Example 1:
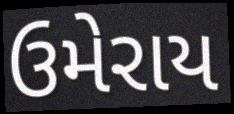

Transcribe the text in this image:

ઉમેરાય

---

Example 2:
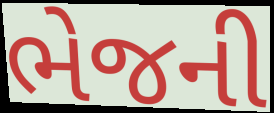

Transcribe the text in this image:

ભેજની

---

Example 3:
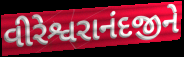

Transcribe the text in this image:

વીરેશ્વરાનંદજીને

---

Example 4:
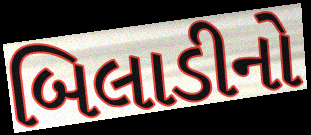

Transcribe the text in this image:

બિલાડીનો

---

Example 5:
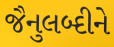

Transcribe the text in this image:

જૈનુલબ્દીને